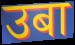
उबा